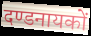
दण्डनायकों